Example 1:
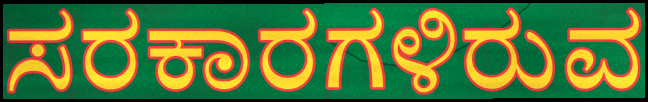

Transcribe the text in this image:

ಸರಕಾರಗಳಿರುವ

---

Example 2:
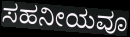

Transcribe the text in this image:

ಸಹನೀಯವೂ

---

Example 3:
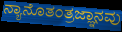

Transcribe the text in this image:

ನ್ಯಾನೊತಂತ್ರಜ್ಞಾನವು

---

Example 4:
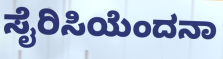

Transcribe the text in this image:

ಸೈರಿಸಿಯೆಂದನಾ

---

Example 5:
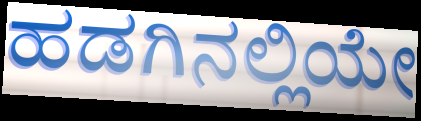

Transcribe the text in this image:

ಹಡಗಿನಲ್ಲಿಯೇ